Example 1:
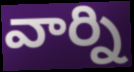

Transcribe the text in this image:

వార్ని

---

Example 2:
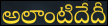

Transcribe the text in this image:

అలాంటిదేదీ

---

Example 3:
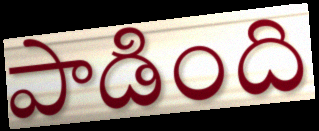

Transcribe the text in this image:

పాడింది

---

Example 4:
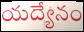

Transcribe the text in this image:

యద్యేనం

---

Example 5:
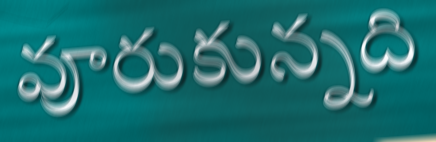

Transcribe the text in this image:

వూరుకున్నది